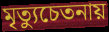
মৃত্যুচেতনায়